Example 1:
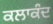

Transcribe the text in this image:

ਕਲਾਕੰਦ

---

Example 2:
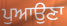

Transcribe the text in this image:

ਪੁਆਉਣਾ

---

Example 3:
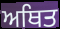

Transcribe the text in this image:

ਅਥਿਤ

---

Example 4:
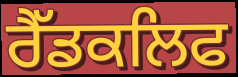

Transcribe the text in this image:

ਰੈੱਡਕਲਿਫ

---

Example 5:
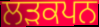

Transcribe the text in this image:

ਲੜਕਪਨ